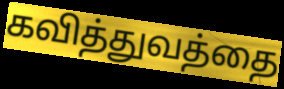
கவித்துவத்தை